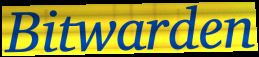
Bitwarden